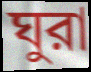
ঘুরা